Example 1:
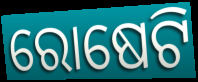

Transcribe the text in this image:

ରୋଷେଟି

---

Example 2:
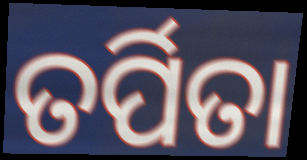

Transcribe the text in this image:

ତର୍ପିତା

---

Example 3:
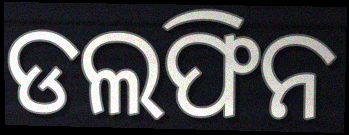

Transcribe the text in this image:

ଡଲଫିନ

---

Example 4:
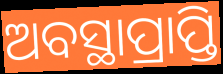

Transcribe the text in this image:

ଅବସ୍ଥାପ୍ରାପ୍ତି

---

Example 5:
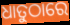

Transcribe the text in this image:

ଧାତୁଠାରେ